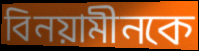
বিনয়ামীনকে